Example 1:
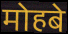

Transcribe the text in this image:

मोहबे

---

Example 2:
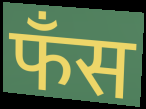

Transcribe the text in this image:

फँस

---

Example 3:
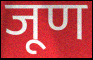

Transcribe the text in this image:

जूण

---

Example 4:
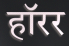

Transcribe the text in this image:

हॉरर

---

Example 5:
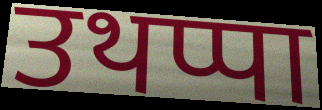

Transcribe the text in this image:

उथप्पा